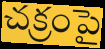
చక్రంపై